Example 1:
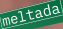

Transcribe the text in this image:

meltada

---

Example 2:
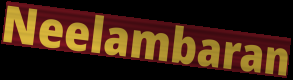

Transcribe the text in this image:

Neelambaran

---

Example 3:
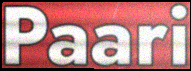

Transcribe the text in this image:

Paari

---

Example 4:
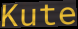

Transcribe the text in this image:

Kute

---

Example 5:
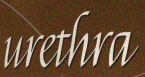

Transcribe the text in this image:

urethra